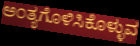
ಅಂತ್ಯಗೊಳಿಸಿಕೊಳ್ಳುವ